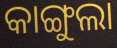
କାଙ୍ଗୁଲା